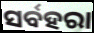
ସର୍ବହରା